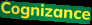
Cognizance